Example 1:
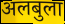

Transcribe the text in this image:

अलबुला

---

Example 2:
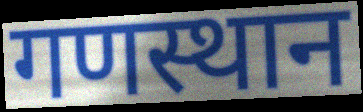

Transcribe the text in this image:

गणस्थान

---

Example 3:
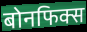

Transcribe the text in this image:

बोनफिक्स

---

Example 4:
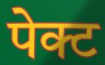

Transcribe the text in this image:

पेक्ट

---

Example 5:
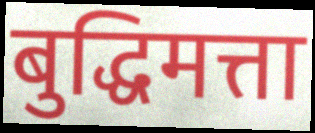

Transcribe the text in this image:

बुद्धिमत्ता